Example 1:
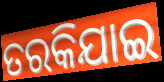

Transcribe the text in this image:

ତରକିଯାଇ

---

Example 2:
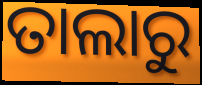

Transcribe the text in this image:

ତାଲାରୁ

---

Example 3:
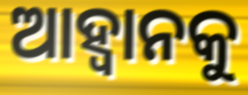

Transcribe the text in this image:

ଆହ୍ବାନକୁ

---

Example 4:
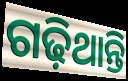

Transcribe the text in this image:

ଗଢ଼ିଥାନ୍ତି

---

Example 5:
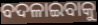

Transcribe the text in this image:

ବଦଳାଇବାକୁ